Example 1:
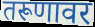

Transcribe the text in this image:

तरूणावर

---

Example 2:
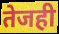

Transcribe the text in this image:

तेजही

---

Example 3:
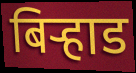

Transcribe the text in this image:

बिऱ्हाड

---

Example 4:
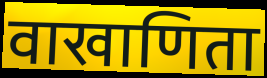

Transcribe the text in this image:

वाखाणिता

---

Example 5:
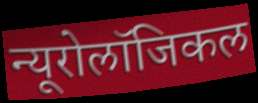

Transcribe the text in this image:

न्यूरोलॉजिकल